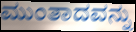
ಮುಂತಾದವನ್ನು